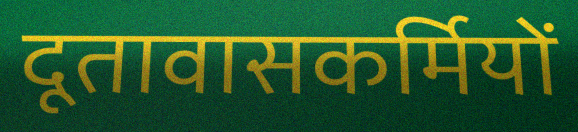
दूतावासकर्मियों